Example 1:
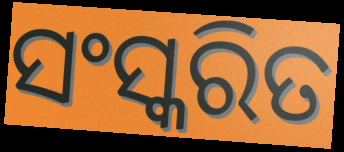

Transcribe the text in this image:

ସଂସ୍କରିତ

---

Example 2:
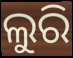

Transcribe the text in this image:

ଲୁରି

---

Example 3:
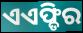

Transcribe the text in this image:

ଏଏଫ୍ଡିର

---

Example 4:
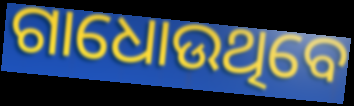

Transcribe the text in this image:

ଗାଧୋଉଥିବେ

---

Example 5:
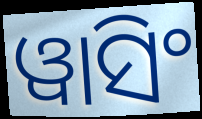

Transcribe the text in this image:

ୱାସିଂ